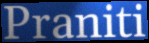
Praniti